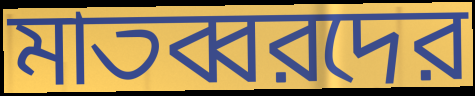
মাতব্বরদের